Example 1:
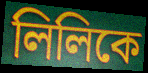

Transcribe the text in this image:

লিলিকে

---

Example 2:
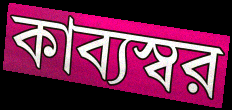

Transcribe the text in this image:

কাব্যস্বর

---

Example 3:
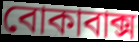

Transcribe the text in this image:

বোকাবাক্স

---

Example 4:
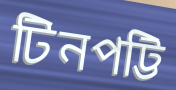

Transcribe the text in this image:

টিনপট্টি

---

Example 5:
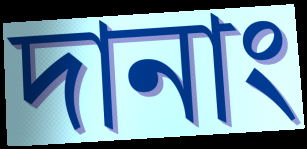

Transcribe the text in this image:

দানাং